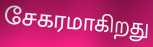
சேகரமாகிறது